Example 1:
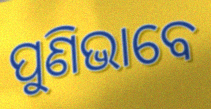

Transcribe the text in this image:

ପୁଣିଭାବେ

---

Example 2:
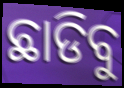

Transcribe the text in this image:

ଛାଡିବୁ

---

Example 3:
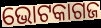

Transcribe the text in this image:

ଭୋଟକାଗଜ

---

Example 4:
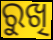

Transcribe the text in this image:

ରୁଖି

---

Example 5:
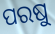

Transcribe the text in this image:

ପରଷୁ